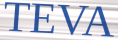
TEVA